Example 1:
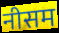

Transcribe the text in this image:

नीसम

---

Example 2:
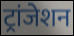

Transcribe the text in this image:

ट्रांजेशन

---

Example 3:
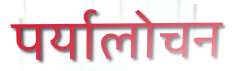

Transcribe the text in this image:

पर्यालोचन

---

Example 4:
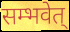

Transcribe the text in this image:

सम्भवेत्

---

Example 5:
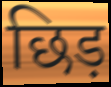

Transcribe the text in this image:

छिड़